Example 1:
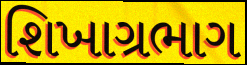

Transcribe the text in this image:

શિખાગ્રભાગ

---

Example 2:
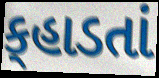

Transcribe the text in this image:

ક્‌હાડતાં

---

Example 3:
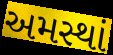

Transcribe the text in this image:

અમસ્થાં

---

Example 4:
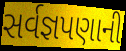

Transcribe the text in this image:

સર્વજ્ઞપણાની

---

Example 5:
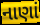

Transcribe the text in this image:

નાણાં